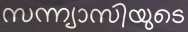
സന്ന്യാസിയുടെ